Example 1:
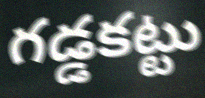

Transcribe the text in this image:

గడ్డకట్టు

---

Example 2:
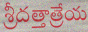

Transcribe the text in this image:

శ్రీదత్తాత్రేయ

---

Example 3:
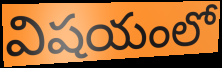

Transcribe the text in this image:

విషయంలో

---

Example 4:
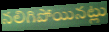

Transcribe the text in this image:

నలిగిపోయినట్లు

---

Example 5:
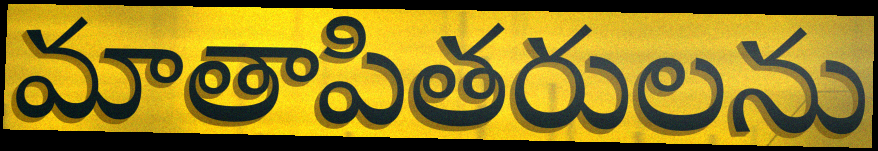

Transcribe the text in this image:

మాతాపితరులను